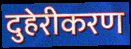
दुहेरीकरण